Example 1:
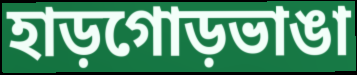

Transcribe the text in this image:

হাড়গোড়ভাঙা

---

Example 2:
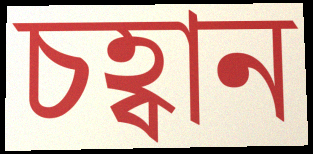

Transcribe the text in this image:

চহ্বান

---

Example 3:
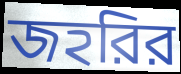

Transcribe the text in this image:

জহরির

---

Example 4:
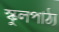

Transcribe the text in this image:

স্কুলপাঠ্য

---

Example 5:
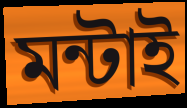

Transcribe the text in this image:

মন্টাই